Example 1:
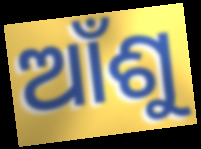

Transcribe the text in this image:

ଆଁଶୁ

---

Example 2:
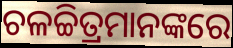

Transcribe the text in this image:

ଚଳଚ୍ଚିତ୍ରମାନଙ୍କରେ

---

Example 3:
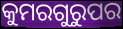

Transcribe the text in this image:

କୁମରଗୁରୁପର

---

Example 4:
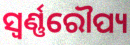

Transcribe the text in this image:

ସ୍ୱର୍ଣ୍ଣରୌପ୍ୟ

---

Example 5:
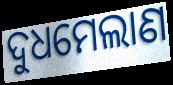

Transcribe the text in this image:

ଦୁଧମେଲାଣ